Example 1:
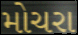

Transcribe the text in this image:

મોચરા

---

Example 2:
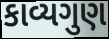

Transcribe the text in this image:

કાવ્યગુણ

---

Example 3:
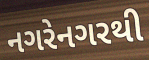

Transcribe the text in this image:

નગરેનગરથી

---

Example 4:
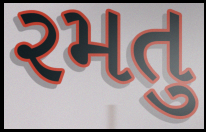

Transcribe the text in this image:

રમતુ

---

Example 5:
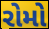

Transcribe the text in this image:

રોમો